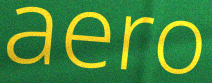
aero